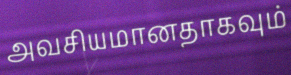
அவசியமானதாகவும்